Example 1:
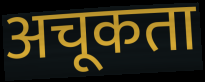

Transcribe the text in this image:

अचूकता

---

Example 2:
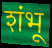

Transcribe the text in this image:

शंभू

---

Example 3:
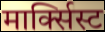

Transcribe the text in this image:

मार्क्सिस्ट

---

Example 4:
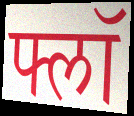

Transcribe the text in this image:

फ्लॉ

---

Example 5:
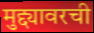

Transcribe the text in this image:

मुद्द्यावरची